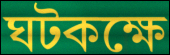
ঘটকক্ষে